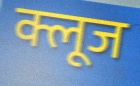
क्लूज